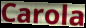
Carola